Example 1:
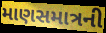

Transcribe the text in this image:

માણસમાત્રની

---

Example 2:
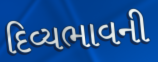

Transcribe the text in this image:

દિવ્યભાવની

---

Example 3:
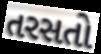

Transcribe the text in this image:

તરસતો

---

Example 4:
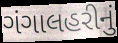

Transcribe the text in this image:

ગંગાલહરીનું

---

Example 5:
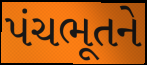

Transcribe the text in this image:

પંચભૂતને